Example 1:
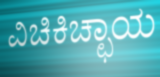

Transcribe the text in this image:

ವಿಚಿಕಿಚ್ಛಾಯ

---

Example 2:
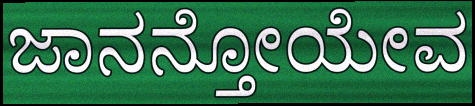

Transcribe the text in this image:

ಜಾನನ್ತೋಯೇವ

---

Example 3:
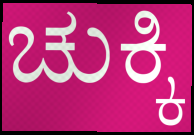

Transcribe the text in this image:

ಚುಕ್ಕಿ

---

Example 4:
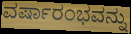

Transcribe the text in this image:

ವರ್ಷಾರಂಭವನ್ನು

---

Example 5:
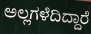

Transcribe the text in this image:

ಅಲ್ಲಗಳೆದಿದ್ದಾರೆ